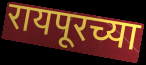
रायपूरच्या